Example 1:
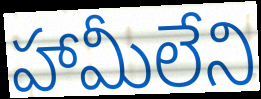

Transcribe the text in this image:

హామీలేని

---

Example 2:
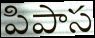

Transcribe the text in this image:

పిపాస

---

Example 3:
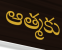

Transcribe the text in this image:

ఆత్మకు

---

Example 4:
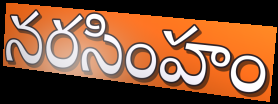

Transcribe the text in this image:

నరసింహం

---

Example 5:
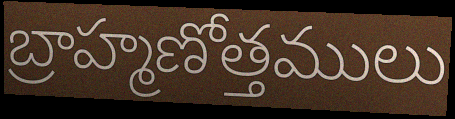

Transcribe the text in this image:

బ్రాహ్మణోత్తములు